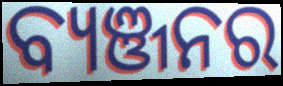
ବ୍ୟଞ୍ଜନର